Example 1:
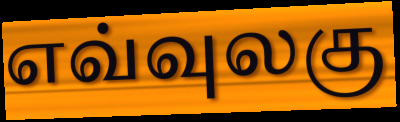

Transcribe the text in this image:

எவ்வுலகு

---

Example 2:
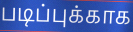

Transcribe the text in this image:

படிப்புக்காக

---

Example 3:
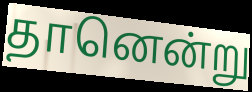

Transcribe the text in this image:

தானென்று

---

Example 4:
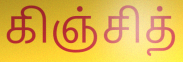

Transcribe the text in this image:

கிஞ்சித்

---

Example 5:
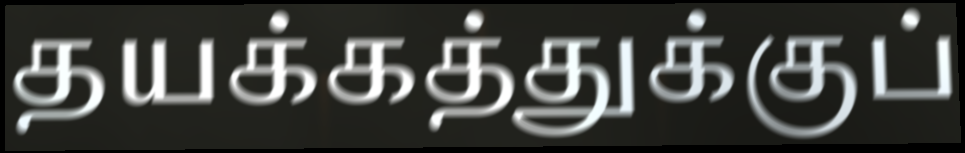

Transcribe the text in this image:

தயக்கத்துக்குப்